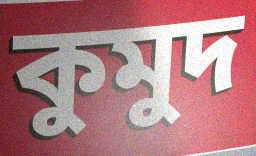
কুমুদ